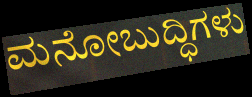
ಮನೋಬುದ್ಧಿಗಳು